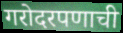
गरोदरपणाची